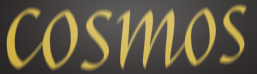
cosmos